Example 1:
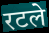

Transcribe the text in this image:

रटले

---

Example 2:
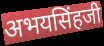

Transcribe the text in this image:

अभयसिंहजी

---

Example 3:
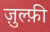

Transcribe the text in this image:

ज़ुल्फ़ी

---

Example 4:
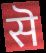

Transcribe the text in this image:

सॆ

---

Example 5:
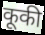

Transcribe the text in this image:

कूकी